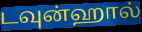
டவுன்ஹால்